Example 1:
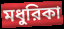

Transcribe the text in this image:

মধুরিকা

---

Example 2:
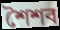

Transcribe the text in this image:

শৈশব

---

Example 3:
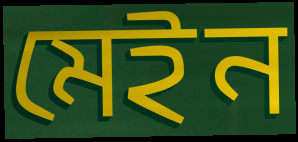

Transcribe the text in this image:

মেইন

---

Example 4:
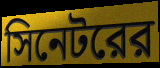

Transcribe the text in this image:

সিনেটরের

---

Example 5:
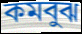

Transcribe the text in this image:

কমবুঝ